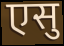
एसु